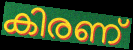
കിരണ്